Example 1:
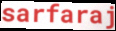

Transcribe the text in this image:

sarfaraj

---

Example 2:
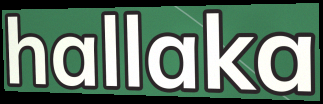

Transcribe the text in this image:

hallaka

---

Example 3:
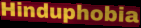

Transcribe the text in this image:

Hinduphobia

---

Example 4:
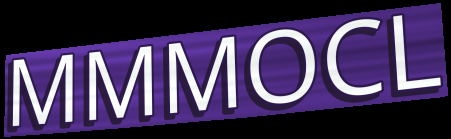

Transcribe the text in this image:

MMMOCL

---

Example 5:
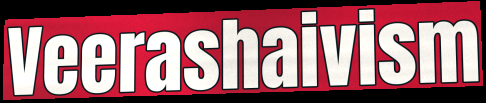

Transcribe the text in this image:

Veerashaivism